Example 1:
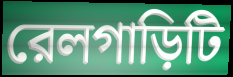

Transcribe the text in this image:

রেলগাড়িটি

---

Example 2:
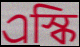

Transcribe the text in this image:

এস্কি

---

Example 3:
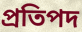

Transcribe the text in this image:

প্রতিপদ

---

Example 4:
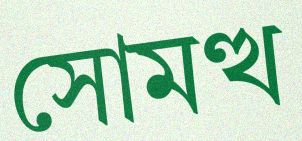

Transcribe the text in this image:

সোমত্থ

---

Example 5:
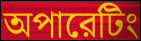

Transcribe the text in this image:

অপারেটিং